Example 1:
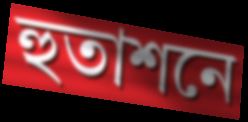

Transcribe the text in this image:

হুতাশনে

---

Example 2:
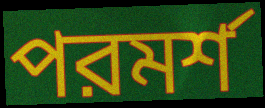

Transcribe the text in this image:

পরমর্শ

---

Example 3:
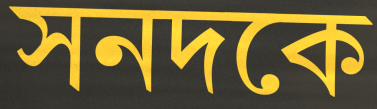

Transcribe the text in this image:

সনদকে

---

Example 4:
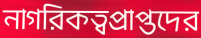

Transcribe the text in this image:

নাগরিকত্বপ্রাপ্তদের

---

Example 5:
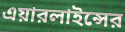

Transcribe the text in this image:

এয়ারলাইন্সের